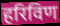
हरिविण